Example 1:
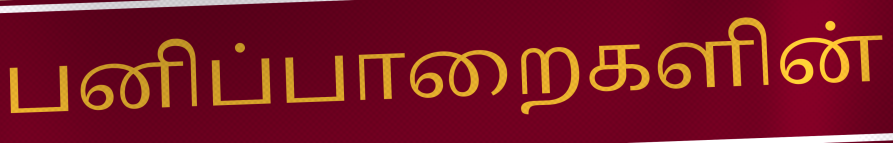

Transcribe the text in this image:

பனிப்பாறைகளின்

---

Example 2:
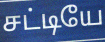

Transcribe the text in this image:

சட்டியே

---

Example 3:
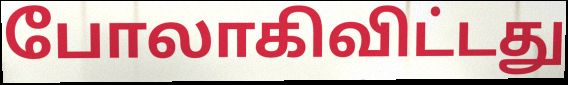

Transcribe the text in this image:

போலாகிவிட்டது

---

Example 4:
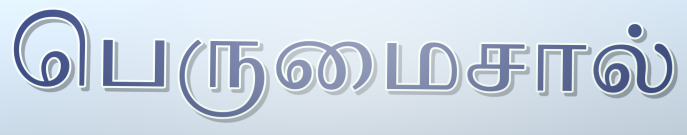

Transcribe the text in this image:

பெருமைசால்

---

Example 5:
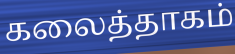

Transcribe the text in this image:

கலைத்தாகம்